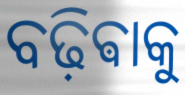
ବଢ଼ିଵାକୁ